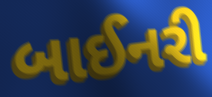
બાઈનરી